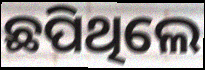
ଛପିଥିଲେ